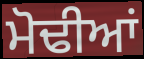
ਮੋਢੀਆਂ